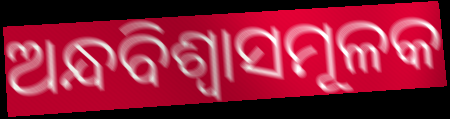
ଅନ୍ଧବିଶ୍ୱାସମୂଳକ